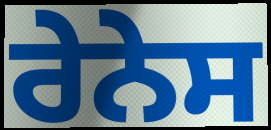
ਰੇਨੇਸ